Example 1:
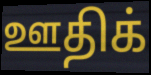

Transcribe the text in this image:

ஊதிக்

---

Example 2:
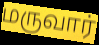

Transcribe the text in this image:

மருவார்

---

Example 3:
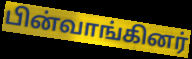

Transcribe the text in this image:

பின்வாங்கினர்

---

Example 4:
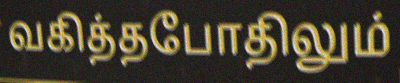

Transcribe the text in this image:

வகித்தபோதிலும்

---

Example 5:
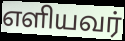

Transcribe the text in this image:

எளியவர்